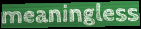
meaningless